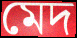
মেদ